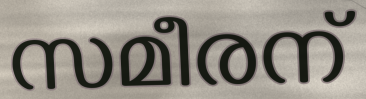
സമീരന്